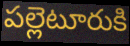
పల్లెటూరుకి